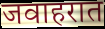
जवाहरात